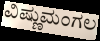
ವಿಷ್ಣುಮಂಗಲ